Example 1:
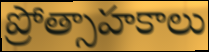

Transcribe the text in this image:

ప్రోత్సాహకాలు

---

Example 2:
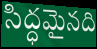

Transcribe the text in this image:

సిద్ధమైనది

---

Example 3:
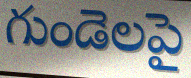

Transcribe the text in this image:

గుండెలపై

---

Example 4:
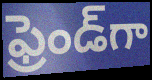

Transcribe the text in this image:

ఫ్రెండ్‌గా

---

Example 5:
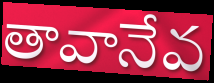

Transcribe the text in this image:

తావానేవ